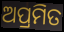
ଅପ୍ରମିତ